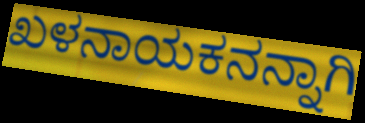
ಖಳನಾಯಕನನ್ನಾಗಿ